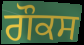
ਗੌਕਸ